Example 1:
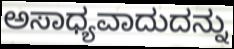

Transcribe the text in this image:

ಅಸಾಧ್ಯವಾದುದನ್ನು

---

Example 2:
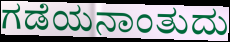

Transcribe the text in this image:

ಗಡೆಯನಾಂತುದು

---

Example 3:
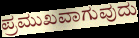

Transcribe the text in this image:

ಪ್ರಮುಖವಾಗುವುದು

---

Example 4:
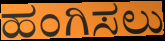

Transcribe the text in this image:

ಹಂಗಿಸಲು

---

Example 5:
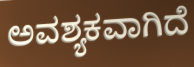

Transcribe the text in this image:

ಅವಶ್ಯಕವಾಗಿದೆ